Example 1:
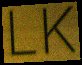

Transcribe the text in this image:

LK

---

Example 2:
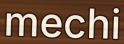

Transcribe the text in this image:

mechi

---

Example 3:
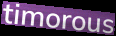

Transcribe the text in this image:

timorous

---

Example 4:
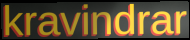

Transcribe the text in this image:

kravindrar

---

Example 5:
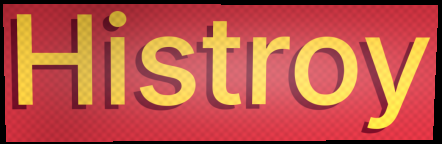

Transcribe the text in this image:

Histroy